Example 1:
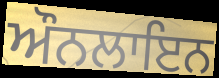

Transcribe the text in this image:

ਔਨਲਾਇਨ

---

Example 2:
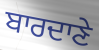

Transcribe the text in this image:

ਬਾਰਦਾਣੇ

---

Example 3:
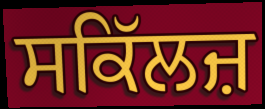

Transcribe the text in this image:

ਸਕਿੱਲਜ਼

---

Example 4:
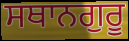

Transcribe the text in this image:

ਸਥਾਨਗੁਰੂ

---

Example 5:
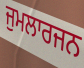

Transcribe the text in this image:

ਜੁਮਲਾਰਜਨ